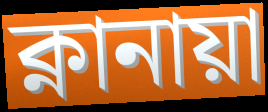
ক্নানায়া